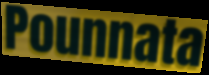
Pounnata